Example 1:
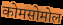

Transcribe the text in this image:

कोमसोमोल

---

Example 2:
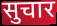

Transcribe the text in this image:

सुचार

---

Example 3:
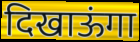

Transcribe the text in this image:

दिखाऊंगा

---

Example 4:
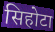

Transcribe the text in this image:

सिहोटा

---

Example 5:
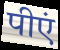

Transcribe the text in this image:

पीएं